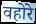
वहोरे